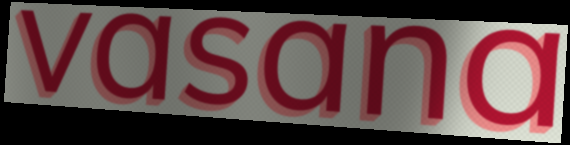
vasana